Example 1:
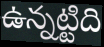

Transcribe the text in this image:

ఉన్నట్టిది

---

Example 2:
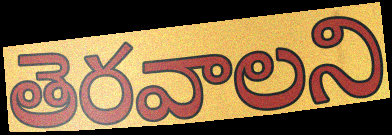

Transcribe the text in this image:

తెరవాలని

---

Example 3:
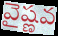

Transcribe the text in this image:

వైష్ణవ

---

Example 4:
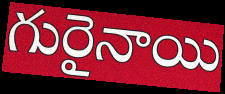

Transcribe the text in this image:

గురైనాయి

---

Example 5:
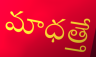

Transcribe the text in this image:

మాధత్తే